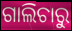
ଗାଲିଚାରୁ